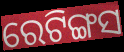
ରେଟିଙ୍ଗସ